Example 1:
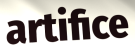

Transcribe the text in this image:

artifice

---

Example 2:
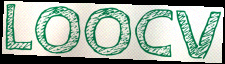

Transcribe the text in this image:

LOOCV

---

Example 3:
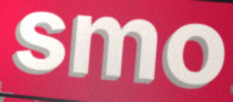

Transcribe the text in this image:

smo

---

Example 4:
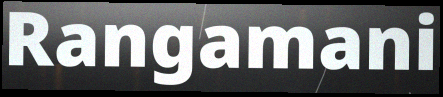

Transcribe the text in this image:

Rangamani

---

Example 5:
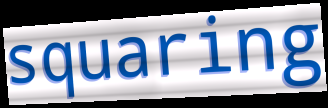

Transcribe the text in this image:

squaring